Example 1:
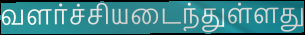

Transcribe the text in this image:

வளர்ச்சியடைந்துள்ளது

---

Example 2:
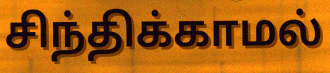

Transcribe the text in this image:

சிந்திக்காமல்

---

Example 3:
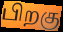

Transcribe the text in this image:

பிறகு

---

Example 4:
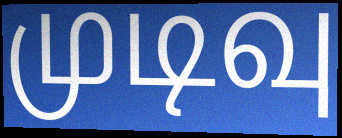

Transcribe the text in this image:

முடிவு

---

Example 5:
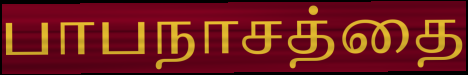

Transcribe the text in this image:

பாபநாசத்தை